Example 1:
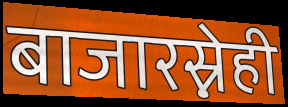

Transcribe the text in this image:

बाजारस्नेही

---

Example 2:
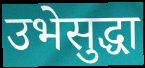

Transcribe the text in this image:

उभेसुद्धा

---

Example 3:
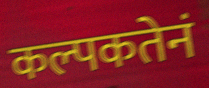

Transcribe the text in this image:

कल्पकतेनं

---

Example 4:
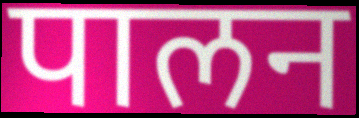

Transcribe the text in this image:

पालन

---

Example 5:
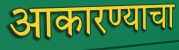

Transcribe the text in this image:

आकारण्याचा